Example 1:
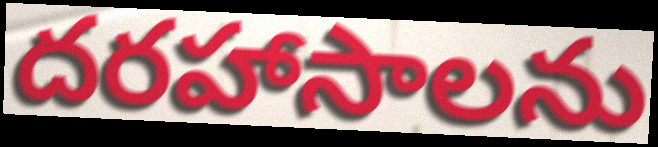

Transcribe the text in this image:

దరహాసాలను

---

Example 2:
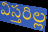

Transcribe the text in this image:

విస్తరిల్ల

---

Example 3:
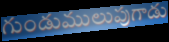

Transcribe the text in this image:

గుండుములుపుగాడు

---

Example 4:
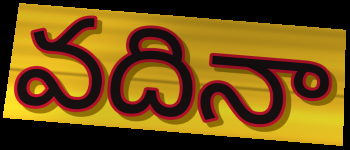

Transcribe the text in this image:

వదినా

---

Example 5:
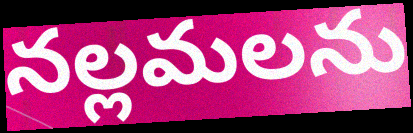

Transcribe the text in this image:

నల్లమలను